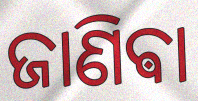
ଜାଣିଵା